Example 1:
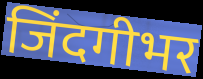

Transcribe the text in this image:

जिंदगीभर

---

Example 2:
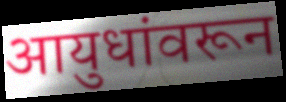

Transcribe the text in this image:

आयुधांवरून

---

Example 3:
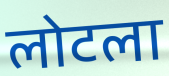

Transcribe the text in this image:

लोटला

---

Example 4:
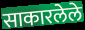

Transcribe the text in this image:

साकारलेले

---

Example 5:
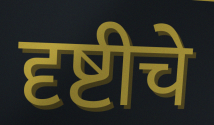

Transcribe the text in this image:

दृष्टीचे